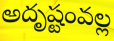
అదృష్టంవల్ల